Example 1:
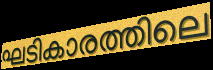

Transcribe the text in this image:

ഘടികാരത്തിലെ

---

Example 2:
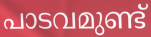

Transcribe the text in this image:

പാടവമുണ്ട്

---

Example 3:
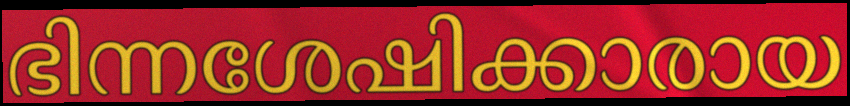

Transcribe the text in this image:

ഭിന്നശേഷിക്കാരായ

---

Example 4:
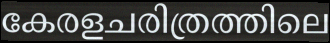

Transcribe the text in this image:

കേരളചരിത്രത്തിലെ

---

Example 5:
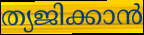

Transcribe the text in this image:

ത്യജിക്കാൻ